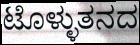
ಟೊಳ್ಳುತನದ